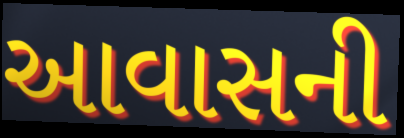
આવાસની